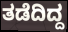
ತಡೆದಿದ್ದ